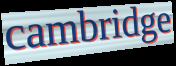
cambridge